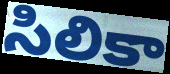
సిలికా